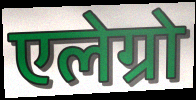
एलेग्रो